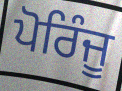
ਪੋਰਿੰਜੂ